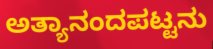
ಅತ್ಯಾನಂದಪಟ್ಟನು